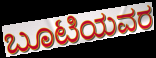
ಬೂಟಿಯವರ